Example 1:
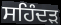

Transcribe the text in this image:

ਸਹਿੰਦੜ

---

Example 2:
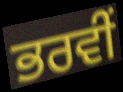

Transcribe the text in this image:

ਭਰਵੀਂ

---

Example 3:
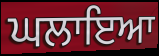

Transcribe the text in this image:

ਘਲਾਇਆ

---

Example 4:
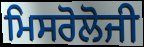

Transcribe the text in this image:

ਮਿਸਰੋਲੋਜੀ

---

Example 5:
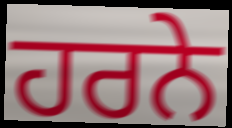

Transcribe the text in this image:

ਹਰਨੇ